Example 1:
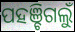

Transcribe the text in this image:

ପହଞ୍ଚିଗଲୁଁ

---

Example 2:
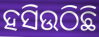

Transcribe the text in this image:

ହସିଉଠିଛି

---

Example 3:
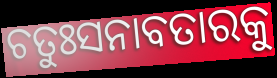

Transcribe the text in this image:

ଚତୁଃସନାବତାରକୁ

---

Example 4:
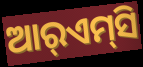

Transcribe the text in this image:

ଆର୍‌ଏମ୍‌ସି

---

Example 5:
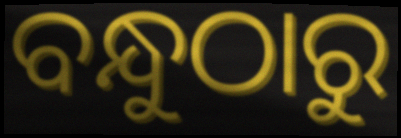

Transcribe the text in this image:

ବନ୍ଧୁଠାରୁ